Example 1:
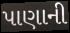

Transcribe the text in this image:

પાણાની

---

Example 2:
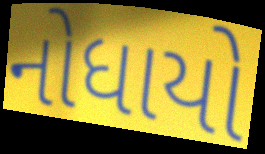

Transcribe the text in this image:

નોધાયો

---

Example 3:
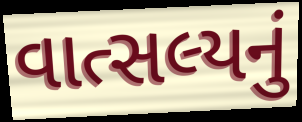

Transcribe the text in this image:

વાત્સલ્યનું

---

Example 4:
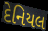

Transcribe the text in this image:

દેનિયલ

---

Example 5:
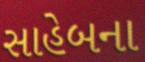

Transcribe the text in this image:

સાહેબના